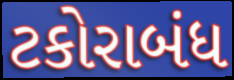
ટકોરાબંધ